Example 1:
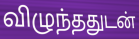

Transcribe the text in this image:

விழுந்ததுடன்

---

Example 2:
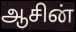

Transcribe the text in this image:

ஆசின்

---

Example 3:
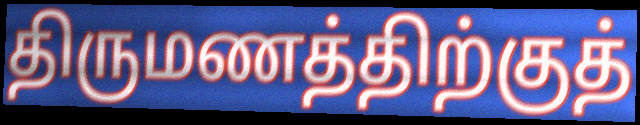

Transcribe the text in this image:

திருமணத்திற்குத்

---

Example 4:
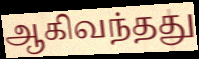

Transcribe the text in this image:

ஆகிவந்தது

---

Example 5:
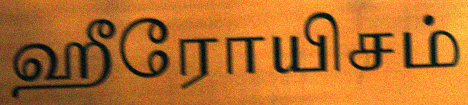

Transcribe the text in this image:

ஹீரோயிசம்